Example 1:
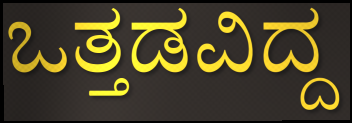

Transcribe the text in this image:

ಒತ್ತಡವಿದ್ದ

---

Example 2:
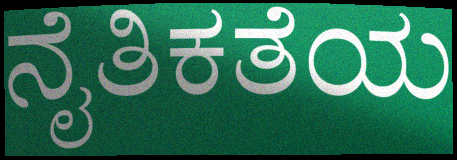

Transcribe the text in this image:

ನೈತಿಕತೆಯ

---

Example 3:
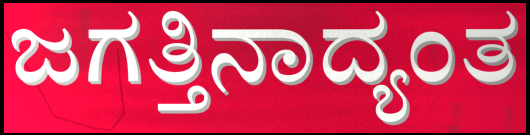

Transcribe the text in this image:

ಜಗತ್ತಿನಾದ್ಯಂತ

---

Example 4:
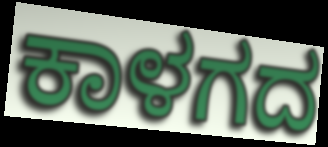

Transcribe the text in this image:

ಕಾಳಗದ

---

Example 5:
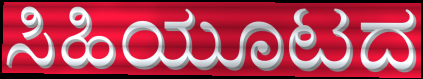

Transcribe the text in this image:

ಸಿಹಿಯೂಟದ